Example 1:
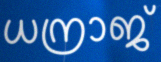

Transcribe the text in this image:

ധന്രാജ്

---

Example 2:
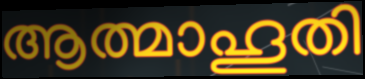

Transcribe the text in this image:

ആത്മാഹൂതി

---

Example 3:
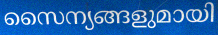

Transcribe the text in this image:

സൈന്യങ്ങളുമായി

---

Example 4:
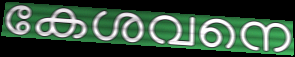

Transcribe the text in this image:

കേശവനെ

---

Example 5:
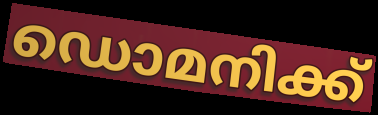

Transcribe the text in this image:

ഡൊമനിക്ക്